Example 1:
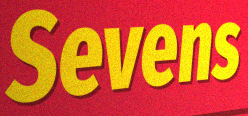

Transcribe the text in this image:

Sevens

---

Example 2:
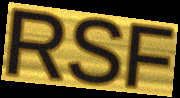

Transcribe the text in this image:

RSF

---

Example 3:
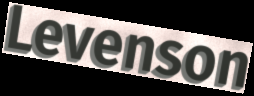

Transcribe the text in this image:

Levenson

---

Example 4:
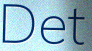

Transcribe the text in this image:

Det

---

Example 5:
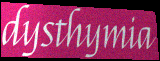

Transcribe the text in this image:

dysthymia